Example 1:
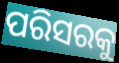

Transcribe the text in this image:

ପରିସରକୁ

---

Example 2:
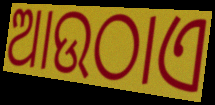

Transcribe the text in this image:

ଆଉଠାଏ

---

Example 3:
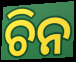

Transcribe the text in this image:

ଚିନ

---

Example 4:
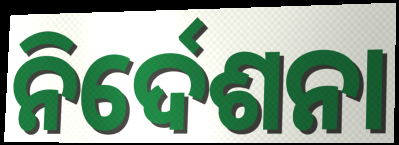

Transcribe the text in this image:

ନିର୍ଦେଶନା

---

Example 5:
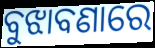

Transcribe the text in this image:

ବୁଝାବଣାରେ